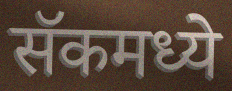
सॅकमध्ये